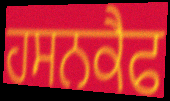
ਹਸਨਕੈਫ